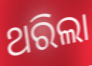
ଥରିଲା